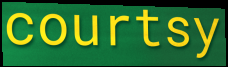
courtsy